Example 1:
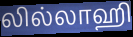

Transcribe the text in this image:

லில்லாஹி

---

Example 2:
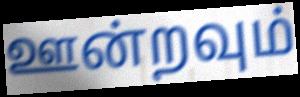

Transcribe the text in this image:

ஊன்றவும்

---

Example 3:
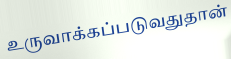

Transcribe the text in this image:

உருவாக்கப்படுவதுதான்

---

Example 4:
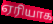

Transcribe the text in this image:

ஏரியாக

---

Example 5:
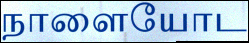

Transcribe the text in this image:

நாளையோட